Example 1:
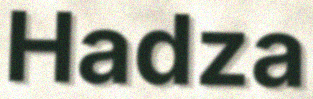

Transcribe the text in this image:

Hadza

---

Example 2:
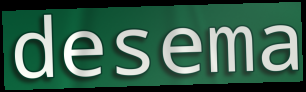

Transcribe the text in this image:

desema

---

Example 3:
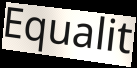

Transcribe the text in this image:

Equalit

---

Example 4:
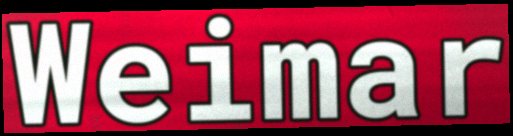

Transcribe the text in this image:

Weimar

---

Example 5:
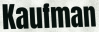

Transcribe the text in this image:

Kaufman